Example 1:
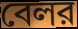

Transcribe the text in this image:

বেলর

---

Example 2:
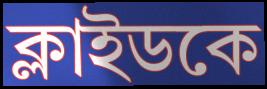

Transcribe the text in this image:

ক্লাইডকে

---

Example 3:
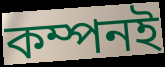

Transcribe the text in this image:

কম্পনই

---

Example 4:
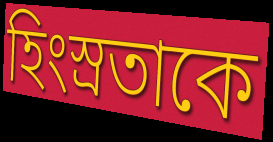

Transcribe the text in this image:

হিংস্রতাকে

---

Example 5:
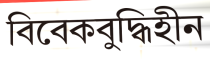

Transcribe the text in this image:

বিবেকবুদ্ধিহীন